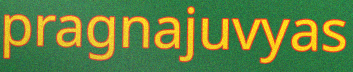
pragnajuvyas